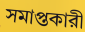
সমাপ্তকারী